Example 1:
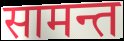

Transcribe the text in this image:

सामन्त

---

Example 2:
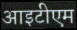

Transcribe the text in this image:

आइटीएम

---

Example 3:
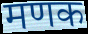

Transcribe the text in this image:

मणक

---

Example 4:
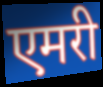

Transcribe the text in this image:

एमरी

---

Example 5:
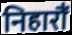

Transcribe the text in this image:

निहारौं